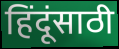
हिंदूंसाठी